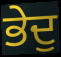
ਭੇਦੁ